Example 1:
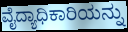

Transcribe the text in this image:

ವೈದ್ಯಾಧಿಕಾರಿಯನ್ನು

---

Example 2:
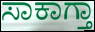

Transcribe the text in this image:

ಸಾಕಾಗ್ತಾ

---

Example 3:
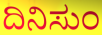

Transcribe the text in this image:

ದಿನಿಸುಂ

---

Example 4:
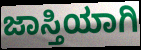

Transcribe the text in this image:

ಜಾಸ್ತಿಯಾಗಿ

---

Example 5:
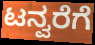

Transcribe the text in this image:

ಟನ್ವರೆಗೆ